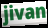
jivan